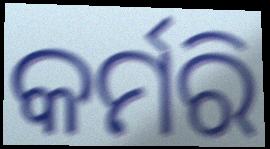
କର୍ମରି